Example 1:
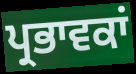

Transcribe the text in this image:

ਪ੍ਰਭਾਵਕਾਂ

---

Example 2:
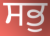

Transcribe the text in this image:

ਸਭੁ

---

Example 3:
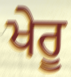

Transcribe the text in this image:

ਖੇਰੂ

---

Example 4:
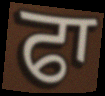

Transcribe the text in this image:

ਫਾ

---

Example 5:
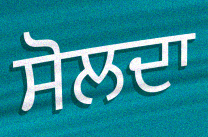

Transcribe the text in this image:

ਸੋਲਦਾ